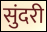
सुंदरी